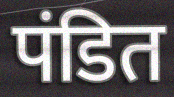
पंडित